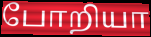
போறியா